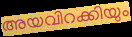
അയവിറക്കിയും